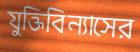
যুক্তিবিন্যাসের